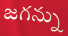
జగన్ను